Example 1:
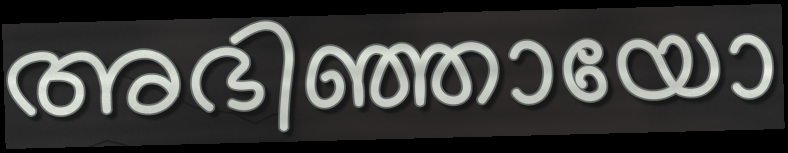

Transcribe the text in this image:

അഭിഞ്ഞായോ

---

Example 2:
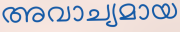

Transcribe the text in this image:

അവാച്യമായ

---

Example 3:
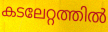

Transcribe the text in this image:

കടലേറ്റത്തിൽ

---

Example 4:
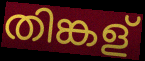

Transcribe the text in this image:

തിങ്കള്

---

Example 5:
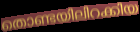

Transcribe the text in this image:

തൊണ്ടയിലിറക്കിയ